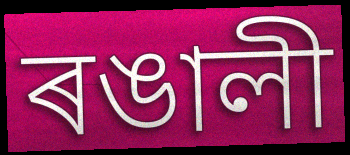
ৰঙালী